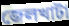
জেলখাটা